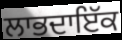
ਲਾਭਦਾਇੱਕ